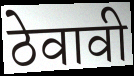
ठेवावी